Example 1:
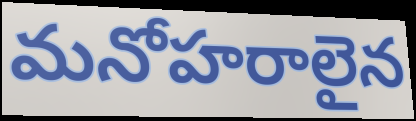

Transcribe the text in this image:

మనోహరాలైన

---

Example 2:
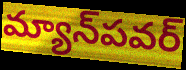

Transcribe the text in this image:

మ్యాన్‌పవర్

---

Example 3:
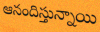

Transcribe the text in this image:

ఆనందిస్తున్నాయి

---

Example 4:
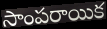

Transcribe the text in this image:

సాంపరాయిక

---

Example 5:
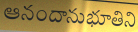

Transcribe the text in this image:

ఆనందానుభూతిని